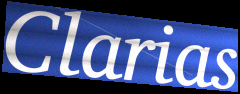
Clarias